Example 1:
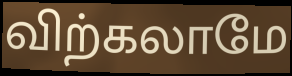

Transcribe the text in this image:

விற்கலாமே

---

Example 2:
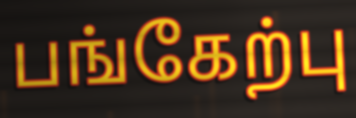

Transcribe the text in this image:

பங்கேற்பு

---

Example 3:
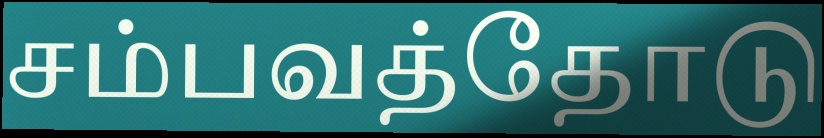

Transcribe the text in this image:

சம்பவத்தோடு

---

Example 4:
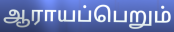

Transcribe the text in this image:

ஆராயப்பெறும்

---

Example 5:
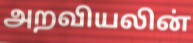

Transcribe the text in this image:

அறவியலின்